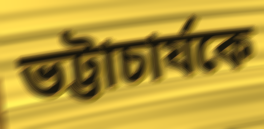
ভট্টাচার্যকে